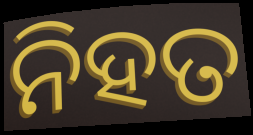
ନିହତ